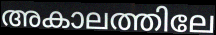
അകാലത്തിലേ